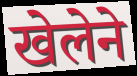
खेलेने